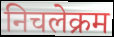
निचलेक्रम